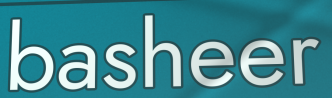
basheer